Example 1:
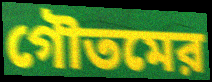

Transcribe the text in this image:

গৌতমের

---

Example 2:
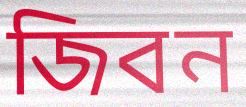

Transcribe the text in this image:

জিবন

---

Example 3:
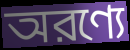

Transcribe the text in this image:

অরণ্যে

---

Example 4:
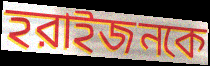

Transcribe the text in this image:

হরাইজনকে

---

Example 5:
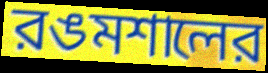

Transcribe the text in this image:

রঙমশালের